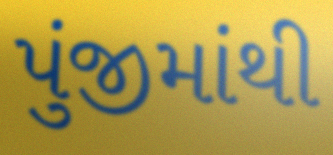
પુંજીમાંથી